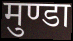
मुण्डा